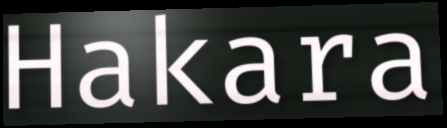
Hakara